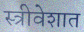
स्त्रीवेशात